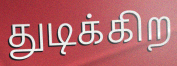
துடிக்கிற